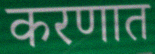
करणात